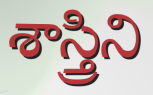
శాస్త్రిని